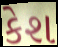
કેશ